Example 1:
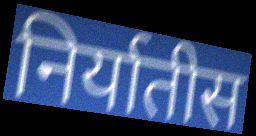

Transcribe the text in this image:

निर्यातीस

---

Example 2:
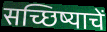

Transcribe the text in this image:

सच्छिष्याचें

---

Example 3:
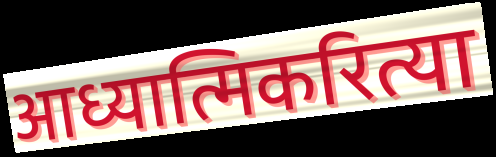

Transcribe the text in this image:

आध्यात्मिकरित्या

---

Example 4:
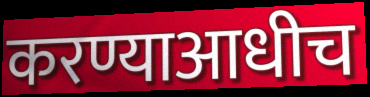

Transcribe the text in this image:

करण्याआधीच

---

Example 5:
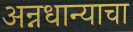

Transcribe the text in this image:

अन्नधान्याचा